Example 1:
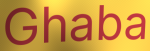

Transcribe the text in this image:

Ghaba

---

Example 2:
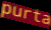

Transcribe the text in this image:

purta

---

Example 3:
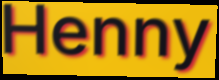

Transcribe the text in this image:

Henny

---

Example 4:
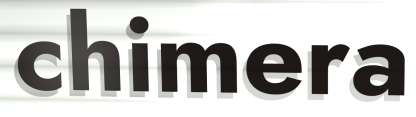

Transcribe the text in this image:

chimera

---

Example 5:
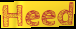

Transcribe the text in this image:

Heed